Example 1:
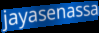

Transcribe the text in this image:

jayasenassa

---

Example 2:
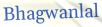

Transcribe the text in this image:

Bhagwanlal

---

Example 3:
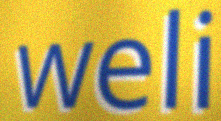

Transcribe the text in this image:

weli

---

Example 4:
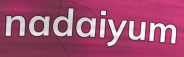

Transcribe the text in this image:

nadaiyum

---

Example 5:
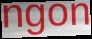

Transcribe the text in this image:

ngon